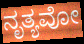
ನೃತ್ಯವೋ